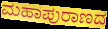
ಮಹಾಪುರಾಣದ